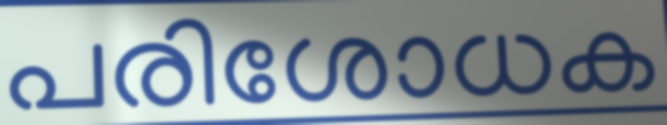
പരിശോധക